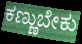
ಕಣ್ಣುಬೇಕು